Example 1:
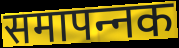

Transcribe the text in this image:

समापन्नक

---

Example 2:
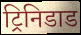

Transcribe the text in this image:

ट्रिनिडाड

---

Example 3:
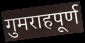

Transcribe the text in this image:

गुमराहपूर्ण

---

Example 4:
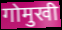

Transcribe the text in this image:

गोमुखी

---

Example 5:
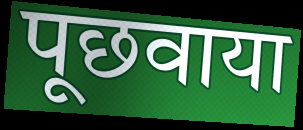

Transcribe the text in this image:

पूछवाया